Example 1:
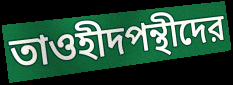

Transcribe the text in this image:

তাওহীদপন্থীদের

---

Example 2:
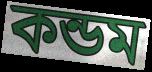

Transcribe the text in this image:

কন্ডম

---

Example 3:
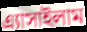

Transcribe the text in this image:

এ্যাসাইলাম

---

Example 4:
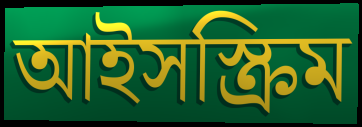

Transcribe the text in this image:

আইসস্ক্রিম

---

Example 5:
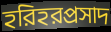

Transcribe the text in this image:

হরিহরপ্রসাদ